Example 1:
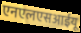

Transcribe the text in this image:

एनएलएसआईयू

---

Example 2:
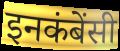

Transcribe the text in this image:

इनकंबेंसी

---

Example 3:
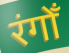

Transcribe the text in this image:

रंगोँ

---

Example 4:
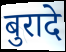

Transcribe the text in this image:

बुरादे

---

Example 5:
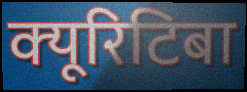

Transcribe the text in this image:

क्यूरिटिबा